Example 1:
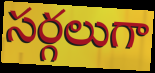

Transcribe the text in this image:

సర్గలుగా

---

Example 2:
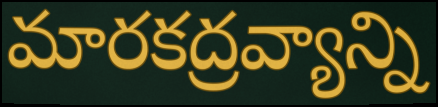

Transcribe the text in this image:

మారకద్రవ్యాన్ని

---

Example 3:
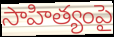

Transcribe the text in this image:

సాహిత్యంపై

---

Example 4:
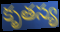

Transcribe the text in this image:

కృతస్య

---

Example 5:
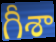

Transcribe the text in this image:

గీశా